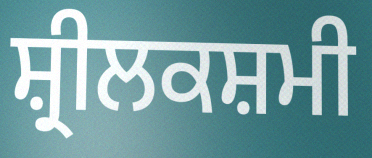
ਸ਼੍ਰੀਲਕਸ਼ਮੀ